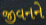
જીવનને